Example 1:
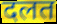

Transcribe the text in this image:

दलत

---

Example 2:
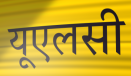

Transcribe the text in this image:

यूएलसी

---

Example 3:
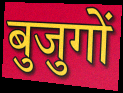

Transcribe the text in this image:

बुजुगों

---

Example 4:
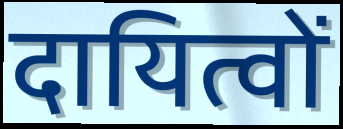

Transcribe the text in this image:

दायित्वों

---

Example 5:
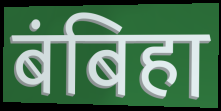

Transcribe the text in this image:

बंबिहा